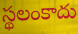
స్థలంకాదు